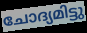
ചോദ്യമിട്ടു